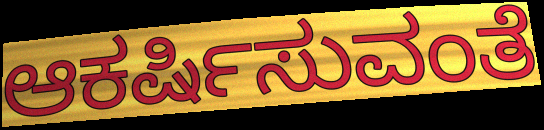
ಆಕರ್ಷಿಸುವಂತೆ